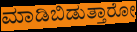
ಮಾಡಿಬಿಡುತ್ತಾರೋ